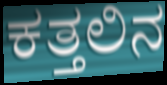
ಕತ್ತಲಿನ